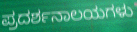
ಪ್ರದರ್ಶನಾಲಯಗಳು